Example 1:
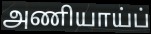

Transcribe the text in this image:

அணியாய்ப்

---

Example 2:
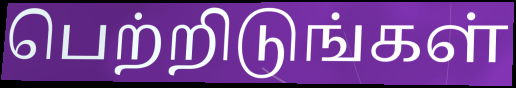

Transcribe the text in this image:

பெற்றிடுங்கள்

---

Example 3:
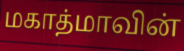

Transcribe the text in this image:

மகாத்மாவின்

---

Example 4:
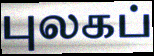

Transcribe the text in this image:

புலகப்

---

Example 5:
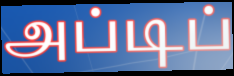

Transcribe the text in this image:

அப்டிப்